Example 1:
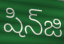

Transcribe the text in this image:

షిన్‌జి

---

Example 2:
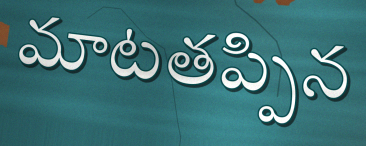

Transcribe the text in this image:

మాటతప్పిన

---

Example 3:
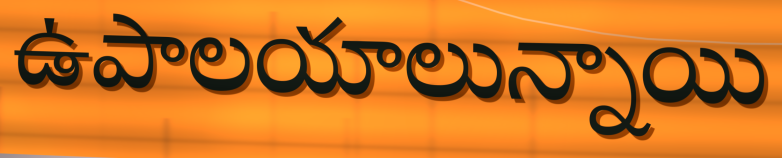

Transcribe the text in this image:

ఉపాలయాలున్నాయి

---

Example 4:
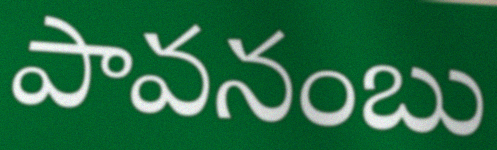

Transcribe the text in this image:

పావనంబు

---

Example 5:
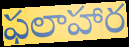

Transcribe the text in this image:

ఫలాహార